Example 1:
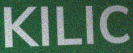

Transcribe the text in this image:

KILIC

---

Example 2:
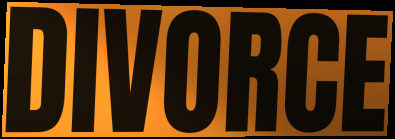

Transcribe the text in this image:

DIVORCE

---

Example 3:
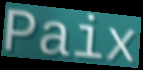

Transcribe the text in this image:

Paix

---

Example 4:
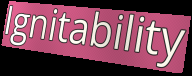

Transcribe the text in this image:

Ignitability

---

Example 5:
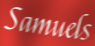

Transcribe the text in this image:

Samuels